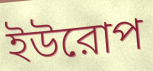
ইউরোপ